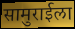
सामुराईला